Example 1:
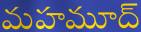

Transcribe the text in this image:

మహమూద్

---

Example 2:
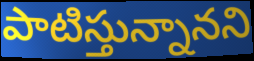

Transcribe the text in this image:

పాటిస్తున్నానని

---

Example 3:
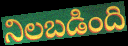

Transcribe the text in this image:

నిలబడింది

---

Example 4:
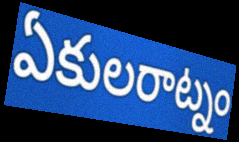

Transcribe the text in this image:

ఏకులరాట్నం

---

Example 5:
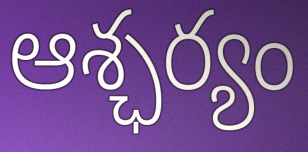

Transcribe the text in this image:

ఆశ్ఛర్యం